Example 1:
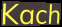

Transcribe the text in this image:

Kach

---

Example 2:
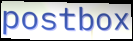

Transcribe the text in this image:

postbox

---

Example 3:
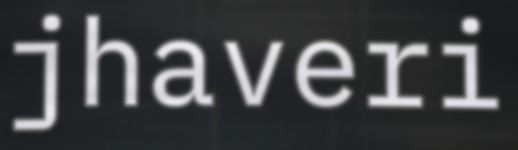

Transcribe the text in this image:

jhaveri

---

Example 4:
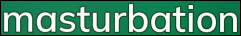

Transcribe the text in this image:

masturbation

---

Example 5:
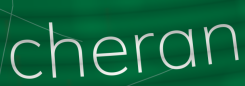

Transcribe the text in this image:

cheran